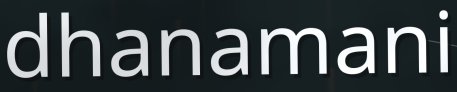
dhanamani